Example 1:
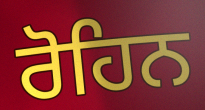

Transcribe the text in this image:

ਰੋਹਿਨ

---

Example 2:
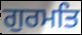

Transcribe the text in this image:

ਗੁਰਮਤਿ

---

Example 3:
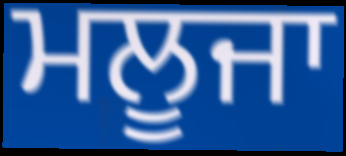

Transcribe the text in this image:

ਮਲੂਜਾ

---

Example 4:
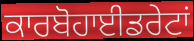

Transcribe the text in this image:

ਕਾਰਬੋਹਾਈਡਰੇਟਾਂ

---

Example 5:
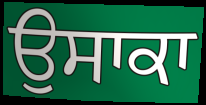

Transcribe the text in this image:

ਉਸਾਕਾ